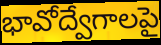
భావోద్వేగాలపై